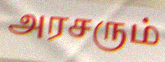
அரசரும்